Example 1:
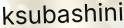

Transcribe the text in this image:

ksubashini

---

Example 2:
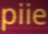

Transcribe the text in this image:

piie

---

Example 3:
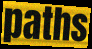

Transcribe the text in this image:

paths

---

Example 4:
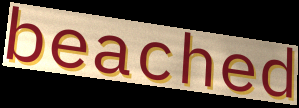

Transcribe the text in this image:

beached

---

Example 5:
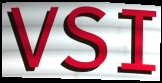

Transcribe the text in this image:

VSI